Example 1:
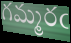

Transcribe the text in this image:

గమ్మరఁ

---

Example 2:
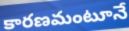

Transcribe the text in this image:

కారణమంటూనే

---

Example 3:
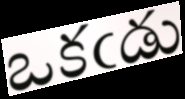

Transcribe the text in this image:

ఒకఁడు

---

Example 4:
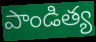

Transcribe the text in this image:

పాండిత్య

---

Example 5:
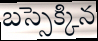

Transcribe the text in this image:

బస్సెక్కిన